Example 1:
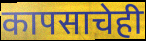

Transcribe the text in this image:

कापसाचेही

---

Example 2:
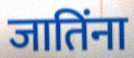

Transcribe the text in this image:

जातिंना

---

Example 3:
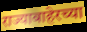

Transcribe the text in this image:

राज्याबाहेरच्या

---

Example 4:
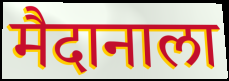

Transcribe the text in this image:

मैदानाला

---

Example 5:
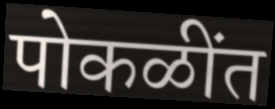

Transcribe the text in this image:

पोकळींत